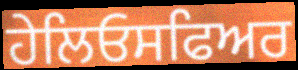
ਹੇਲਿਓਸਫਿਅਰ